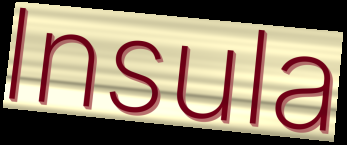
Insula